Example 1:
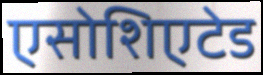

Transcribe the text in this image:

एसोशिएटेड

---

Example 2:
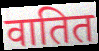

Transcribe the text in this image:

वातित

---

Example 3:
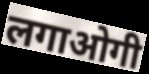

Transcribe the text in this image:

लगाओगी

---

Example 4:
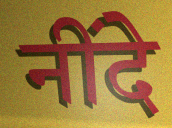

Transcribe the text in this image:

नींदे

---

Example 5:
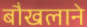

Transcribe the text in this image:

बौखलाने